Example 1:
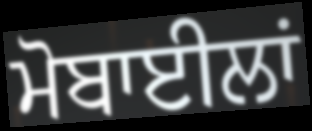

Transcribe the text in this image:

ਮੋਬਾਈਲਾਂ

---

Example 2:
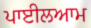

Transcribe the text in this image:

ਪਾਈਲਆਮ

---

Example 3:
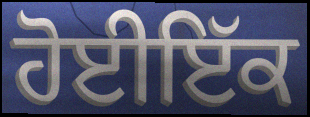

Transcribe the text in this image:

ਹੋਈਇੱਕ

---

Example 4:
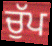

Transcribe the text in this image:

ਚੁੱਪ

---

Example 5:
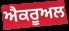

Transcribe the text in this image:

ਐਕਰੂਅਲ